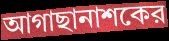
আগাছানাশকের